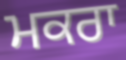
ਮਕਰਾ